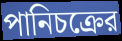
পানিচক্রের